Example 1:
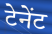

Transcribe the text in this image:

टेनेंट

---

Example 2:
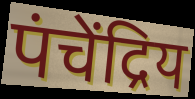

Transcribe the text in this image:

पंचेंद्रिय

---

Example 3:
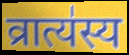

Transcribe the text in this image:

व्रात्य॑स्य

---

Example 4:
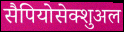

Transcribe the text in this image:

सैपियोसेक्शुअल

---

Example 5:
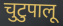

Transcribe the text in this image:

चुटुपालू